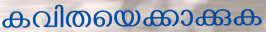
കവിതയെക്കാക്കുക